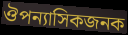
ঔপন্যাসিকজনক